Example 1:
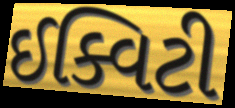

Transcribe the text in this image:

ઈક્વિટી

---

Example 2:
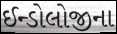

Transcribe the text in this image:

ઈન્ડોલોજીના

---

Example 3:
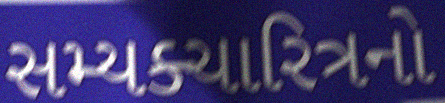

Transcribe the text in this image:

સમ્યક્ચારિત્રનો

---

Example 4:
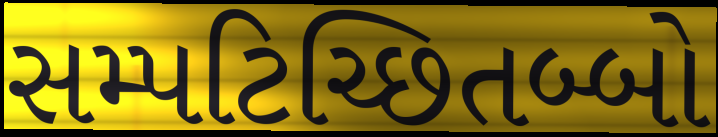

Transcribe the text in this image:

સમ્પટિચ્છિતબ્બો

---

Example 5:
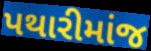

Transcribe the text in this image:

પથારીમાંજ